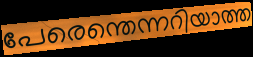
പേരെന്തെന്നറിയാത്ത